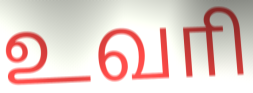
உவரி